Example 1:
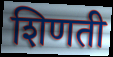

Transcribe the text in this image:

शिणती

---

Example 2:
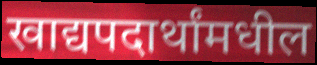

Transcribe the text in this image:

खाद्यपदार्थांमधील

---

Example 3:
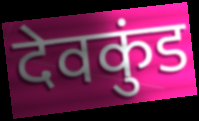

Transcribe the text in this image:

देवकुंड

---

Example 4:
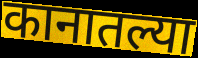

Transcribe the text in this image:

कानातल्या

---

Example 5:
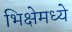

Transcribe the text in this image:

भिक्षेमध्ये